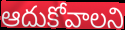
ఆదుకోవాలని